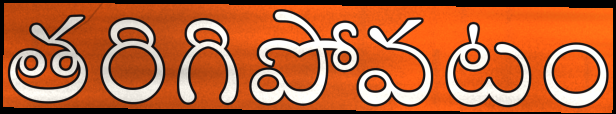
తరిగిపోవటం